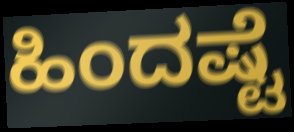
ಹಿಂದಷ್ಟೆ